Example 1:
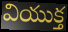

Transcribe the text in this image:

వియుక్త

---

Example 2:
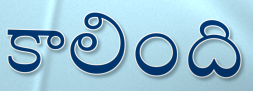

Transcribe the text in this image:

కాలింది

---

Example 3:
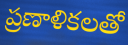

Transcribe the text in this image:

ప్రణాళికలతో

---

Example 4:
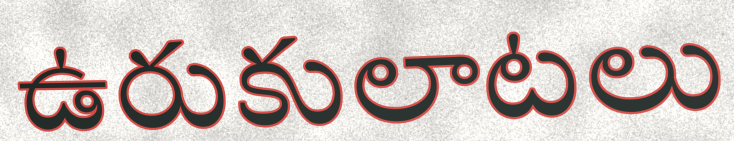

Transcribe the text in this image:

ఉరుకులాటలు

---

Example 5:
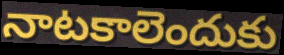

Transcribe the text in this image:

నాటకాలెందుకు